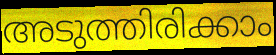
അടുത്തിരിക്കാം